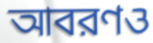
আবরণও